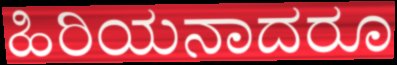
ಹಿರಿಯನಾದರೂ